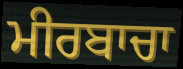
ਮੀਰਬਾਚਾ